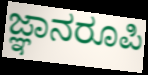
ಜ್ಞಾನರೂಪಿ